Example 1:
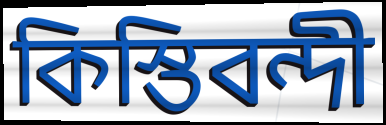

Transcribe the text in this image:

কিস্তিবন্দী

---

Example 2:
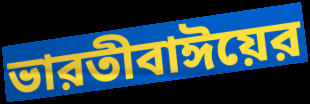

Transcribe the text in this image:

ভারতীবাঈয়ের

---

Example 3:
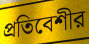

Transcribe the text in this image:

প্রতিবেশীর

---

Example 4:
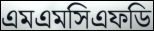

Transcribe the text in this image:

এমএমসিএফডি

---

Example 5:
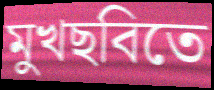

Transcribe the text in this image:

মুখছবিতে